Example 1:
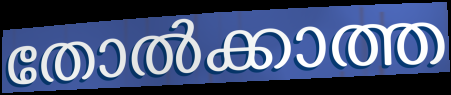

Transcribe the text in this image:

തോൽക്കാത്ത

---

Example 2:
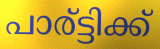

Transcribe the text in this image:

പാര്ട്ടിക്ക്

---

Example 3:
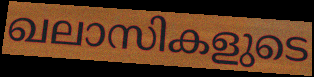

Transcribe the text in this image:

ഖലാസികളുടെ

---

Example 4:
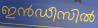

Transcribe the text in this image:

ഇൻഡീസിൽ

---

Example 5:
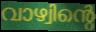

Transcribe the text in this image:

വാഴ്വിന്റെ